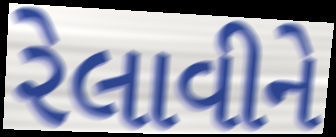
રેલાવીને